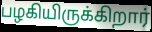
பழகியிருக்கிறார்